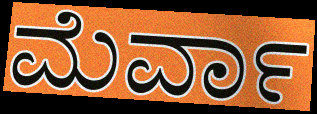
ಮೆರ್ವಾ